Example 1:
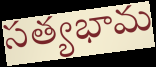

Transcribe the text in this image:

సత్యభామ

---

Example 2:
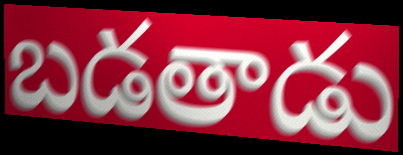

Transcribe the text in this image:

బడతాడు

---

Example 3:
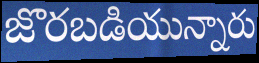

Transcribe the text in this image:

జొరబడియున్నారు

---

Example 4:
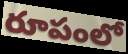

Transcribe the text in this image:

రూపంలో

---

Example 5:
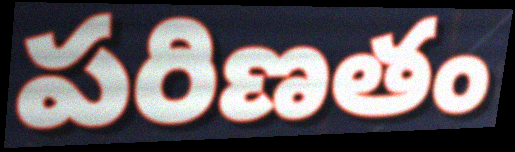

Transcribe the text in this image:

పరిణతం